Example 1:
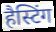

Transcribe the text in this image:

हैस्टिंग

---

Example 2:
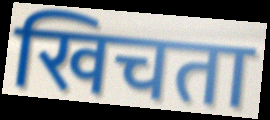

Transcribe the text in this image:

खिचता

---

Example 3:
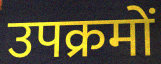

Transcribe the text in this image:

उपक्रमों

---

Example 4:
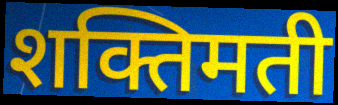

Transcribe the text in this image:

शक्तिमती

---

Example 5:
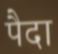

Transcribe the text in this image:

पैदा